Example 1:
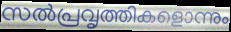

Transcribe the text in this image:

സൽപ്രവൃത്തികളൊന്നും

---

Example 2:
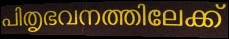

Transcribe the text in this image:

പിതൃഭവനത്തിലേക്ക്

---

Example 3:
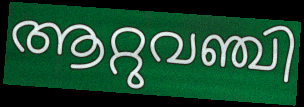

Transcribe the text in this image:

ആറ്റുവഞ്ചി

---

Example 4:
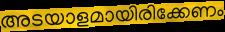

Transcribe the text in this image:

അടയാളമായിരിക്കേണം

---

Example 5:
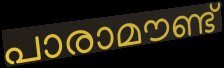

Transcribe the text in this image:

പാരാമൗണ്ട്